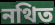
নথিত